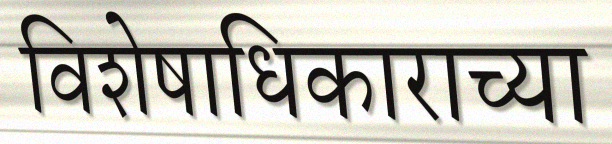
विशेषाधिकाराच्या